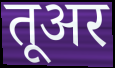
तूअर